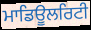
ਮਾਡਿਊਲਰਿਟੀ